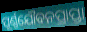
ପୂର୍ଣ୍ଣଯୌବନପ୍ରାପ୍ତା